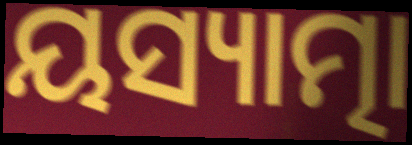
ୟସ୍ୟାତ୍ମା